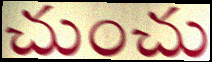
చుంచు